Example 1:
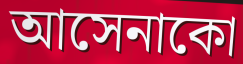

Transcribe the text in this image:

আসেনাকো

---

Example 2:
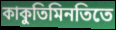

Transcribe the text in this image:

কাকুতিমিনতিতে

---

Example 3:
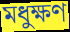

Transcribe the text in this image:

মধুক্ষণ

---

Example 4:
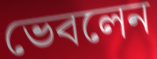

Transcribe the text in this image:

ভেবলেন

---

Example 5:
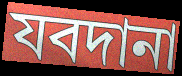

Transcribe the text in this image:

যবদানা